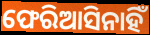
ଫେରିଆସିନାହିଁ